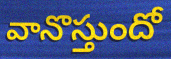
వానొస్తుందో